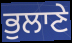
ਭੁਲਾਣੇ